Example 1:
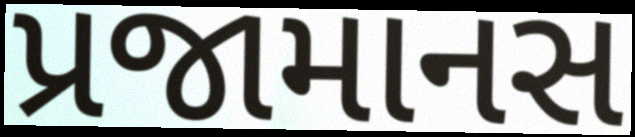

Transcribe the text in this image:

પ્રજામાનસ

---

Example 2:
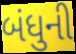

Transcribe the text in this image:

બંધુની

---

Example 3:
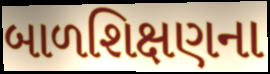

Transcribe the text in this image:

બાળશિક્ષણના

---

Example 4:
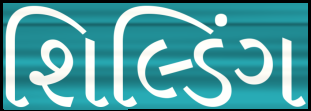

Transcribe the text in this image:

શિલ્ડિંગ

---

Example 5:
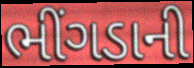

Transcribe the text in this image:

ભીંગડાની